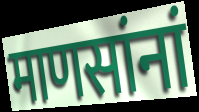
माणसांनां